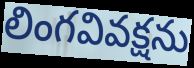
లింగవివక్షను